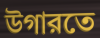
উগারতে